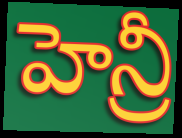
హెన్రీ